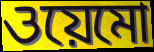
ওয়েমো